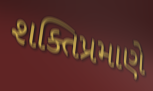
શક્તિપ્રમાણે